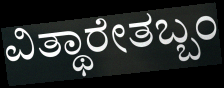
ವಿತ್ಥಾರೇತಬ್ಬಂ